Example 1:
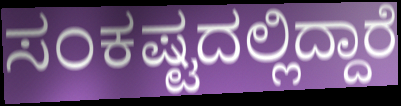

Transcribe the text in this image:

ಸಂಕಷ್ಟದಲ್ಲಿದ್ದಾರೆ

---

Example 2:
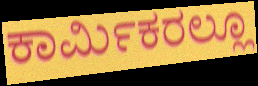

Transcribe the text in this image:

ಕಾರ್ಮಿಕರಲ್ಲೂ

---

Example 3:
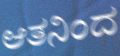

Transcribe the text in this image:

ಆತನಿಂದ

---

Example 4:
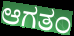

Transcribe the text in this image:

ಆಗತಂ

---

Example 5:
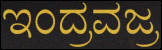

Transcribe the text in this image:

ಇಂದ್ರವಜ್ರ